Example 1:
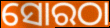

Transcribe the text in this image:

ସୋରଠା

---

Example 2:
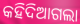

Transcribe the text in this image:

କହିଦିଆଗଲା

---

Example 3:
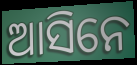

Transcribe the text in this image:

ଆସିନେ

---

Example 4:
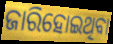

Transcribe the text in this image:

ଜାରିହୋଇଥିବା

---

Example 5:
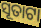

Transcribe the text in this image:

ସୂତାଟା